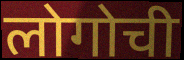
लोगोची